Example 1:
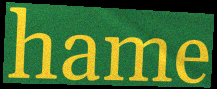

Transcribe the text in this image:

hame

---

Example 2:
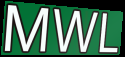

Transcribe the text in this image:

MWL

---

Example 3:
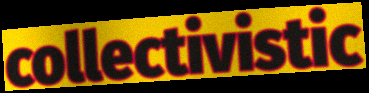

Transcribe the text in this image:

collectivistic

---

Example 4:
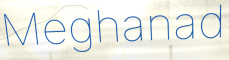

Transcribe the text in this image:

Meghanad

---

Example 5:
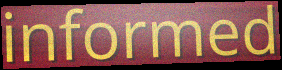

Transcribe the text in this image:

informed